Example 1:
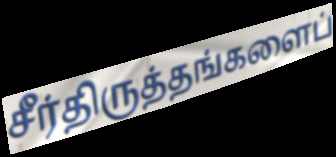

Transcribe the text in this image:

சீர்திருத்தங்களைப்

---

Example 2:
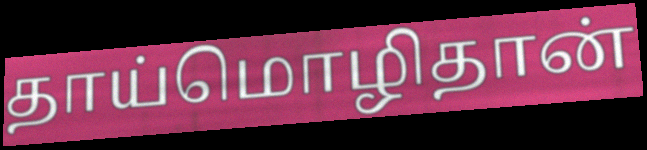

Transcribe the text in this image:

தாய்மொழிதான்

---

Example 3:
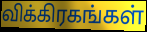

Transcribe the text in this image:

விக்கிரகங்கள்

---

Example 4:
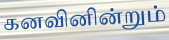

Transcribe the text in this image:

கனவினின்றும்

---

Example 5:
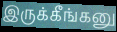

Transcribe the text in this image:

இருக்கீங்கனு